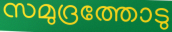
സമുദ്രത്തോടു